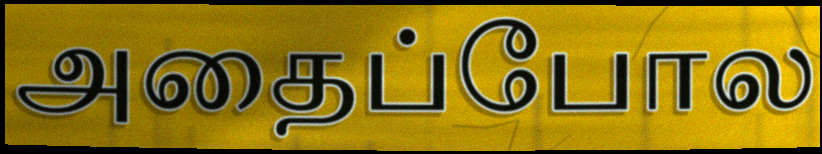
அதைப்போல